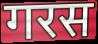
गरस